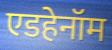
एडहेनॉम